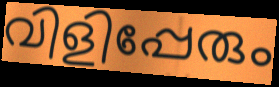
വിളിപ്പേരും